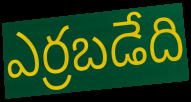
ఎర్రబడేది